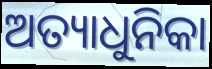
ଅତ୍ୟାଧୁନିକା